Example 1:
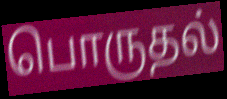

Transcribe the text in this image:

பொருதல்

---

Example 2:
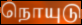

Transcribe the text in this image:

நொயுடு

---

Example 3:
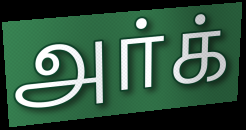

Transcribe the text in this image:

அர்க்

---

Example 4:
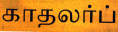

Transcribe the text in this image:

காதலர்ப்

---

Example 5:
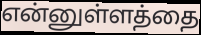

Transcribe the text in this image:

என்னுள்ளத்தை